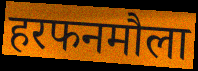
हरफनमौला